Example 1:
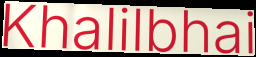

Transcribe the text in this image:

Khalilbhai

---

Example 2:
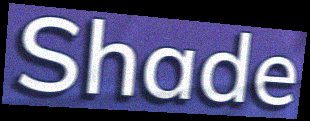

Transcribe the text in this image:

Shade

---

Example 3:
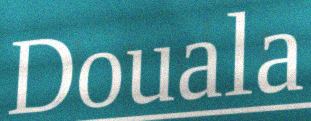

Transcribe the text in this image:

Douala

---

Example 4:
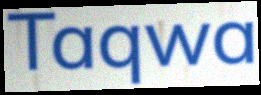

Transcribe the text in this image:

Taqwa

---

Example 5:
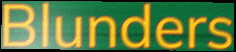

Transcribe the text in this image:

Blunders